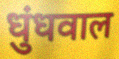
धुंधवाल